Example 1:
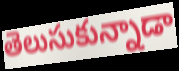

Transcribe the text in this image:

తెలుసుకున్నాడా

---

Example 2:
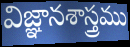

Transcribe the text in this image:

విజ్ఞానశాస్త్రము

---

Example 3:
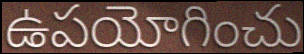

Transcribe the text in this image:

ఉపయోగించు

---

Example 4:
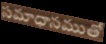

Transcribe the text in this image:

సమాధానముతో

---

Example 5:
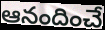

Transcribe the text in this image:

ఆనందించే